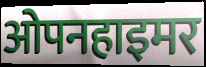
ओपनहाइमर